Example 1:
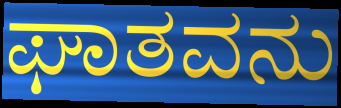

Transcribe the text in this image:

ಘಾತವನು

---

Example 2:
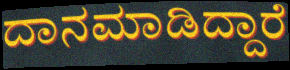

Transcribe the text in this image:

ದಾನಮಾಡಿದ್ದಾರೆ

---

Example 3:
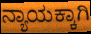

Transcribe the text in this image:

ನ್ಯಾಯಕ್ಕಾಗಿ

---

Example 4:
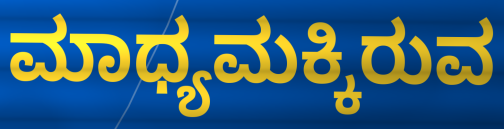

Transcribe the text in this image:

ಮಾಧ್ಯಮಕ್ಕಿರುವ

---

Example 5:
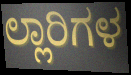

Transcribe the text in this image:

ಲ್ಲಾರಿಗಳ